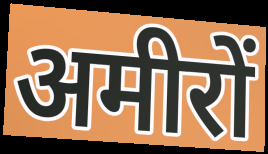
अमीरों